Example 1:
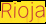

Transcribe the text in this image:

Rioja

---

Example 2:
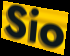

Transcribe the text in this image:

Sio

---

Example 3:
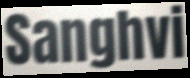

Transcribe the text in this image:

Sanghvi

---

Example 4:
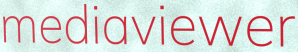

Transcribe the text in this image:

mediaviewer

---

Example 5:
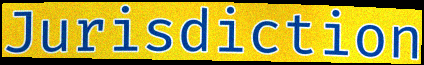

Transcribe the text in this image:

Jurisdiction